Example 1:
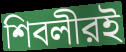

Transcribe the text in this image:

শিবলীরই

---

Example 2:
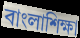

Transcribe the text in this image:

বাংলাশিক্ষা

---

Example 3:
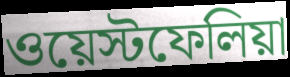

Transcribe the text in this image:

ওয়েস্টফেলিয়া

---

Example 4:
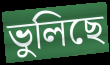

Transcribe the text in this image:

ভুলিছে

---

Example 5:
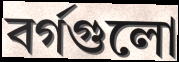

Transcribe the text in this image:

বর্গগুলো